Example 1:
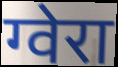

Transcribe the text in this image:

ग्वेरा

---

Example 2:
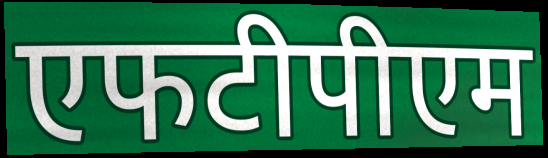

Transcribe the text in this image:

एफटीपीएम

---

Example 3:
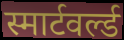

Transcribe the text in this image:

स्मार्टवर्ल्ड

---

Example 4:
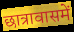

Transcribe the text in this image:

छात्रावासमें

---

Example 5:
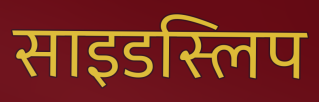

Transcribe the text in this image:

साइडस्लिप